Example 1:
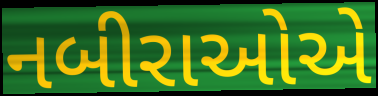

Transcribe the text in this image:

નબીરાઓએ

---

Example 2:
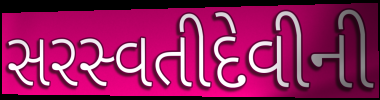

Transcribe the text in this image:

સરસ્વતીદેવીની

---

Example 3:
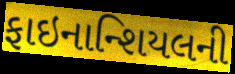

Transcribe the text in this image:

ફાઇનાન્શિયલની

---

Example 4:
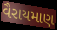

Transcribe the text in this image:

વૈરાયમાણ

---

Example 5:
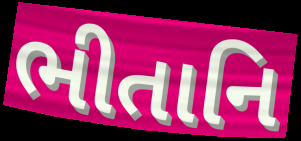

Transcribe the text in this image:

ભીતાનિ